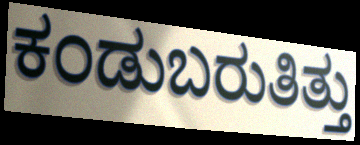
ಕಂಡುಬರುತಿತ್ತು